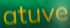
atuve